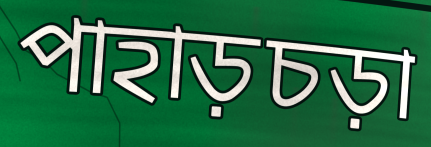
পাহাড়চড়া